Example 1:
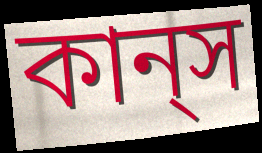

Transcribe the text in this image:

কান্‌স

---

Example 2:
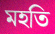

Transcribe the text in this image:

মহতি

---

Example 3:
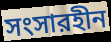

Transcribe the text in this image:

সংসারহীন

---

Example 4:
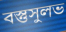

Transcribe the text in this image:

বস্তুসুলভ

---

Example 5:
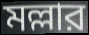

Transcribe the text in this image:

মল্লার